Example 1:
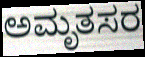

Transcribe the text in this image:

ಅಮೃತಸರ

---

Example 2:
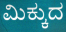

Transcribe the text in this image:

ಮಿಕ್ಕುದ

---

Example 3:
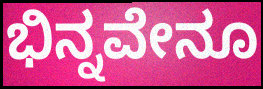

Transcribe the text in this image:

ಭಿನ್ನವೇನೂ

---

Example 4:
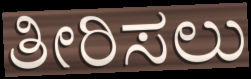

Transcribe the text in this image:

ತೀರಿಸಲು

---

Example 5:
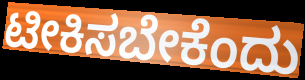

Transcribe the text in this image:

ಟೀಕಿಸಬೇಕೆಂದು